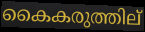
കൈകരുത്തില്